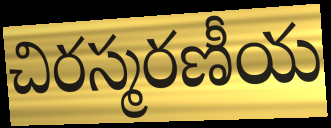
చిరస్మరణీయ